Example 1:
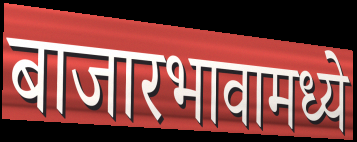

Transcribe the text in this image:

बाजारभावामध्ये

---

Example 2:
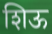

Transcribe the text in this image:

शिऊ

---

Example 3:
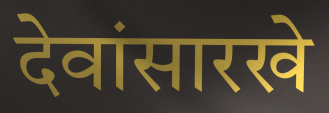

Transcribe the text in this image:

देवांसारखे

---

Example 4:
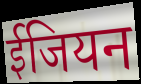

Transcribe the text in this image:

ईजियन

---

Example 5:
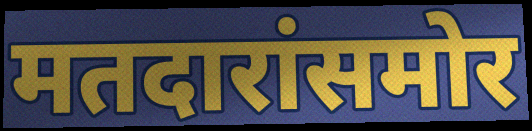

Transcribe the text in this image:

मतदारांसमोर